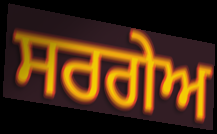
ਸਰਗੇਅ